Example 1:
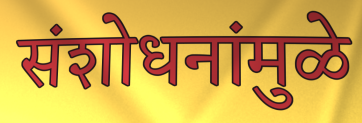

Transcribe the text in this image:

संशोधनांमुळे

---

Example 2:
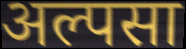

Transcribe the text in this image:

अल्पसा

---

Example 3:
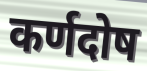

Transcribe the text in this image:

कर्णदोष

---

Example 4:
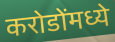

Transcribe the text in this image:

करोडोंमध्ये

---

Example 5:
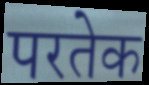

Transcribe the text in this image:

परतेक